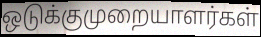
ஒடுக்குமுறையாளர்கள்